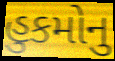
હુકમોનુ